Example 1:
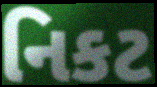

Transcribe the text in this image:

નિકટ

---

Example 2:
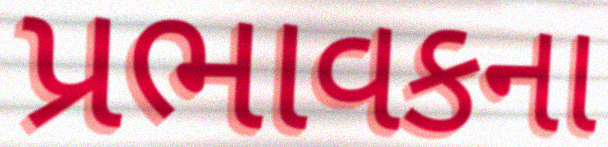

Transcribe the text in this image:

પ્રભાવકના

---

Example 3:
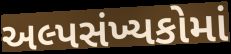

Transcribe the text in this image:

અલ્પસંખ્યકોમાં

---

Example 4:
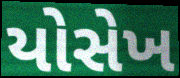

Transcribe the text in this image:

યોસેખ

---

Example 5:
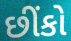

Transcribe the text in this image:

છીંકો